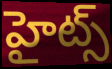
హైట్స్